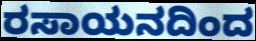
ರಸಾಯನದಿಂದ